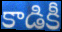
కాడికీ